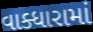
વાક્ધારામાં